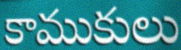
కాముకులు